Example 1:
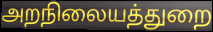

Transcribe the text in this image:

அறநிலையத்துறை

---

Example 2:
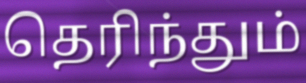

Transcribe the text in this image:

தெரிந்தும்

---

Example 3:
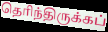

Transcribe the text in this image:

தெரிந்திருக்கப்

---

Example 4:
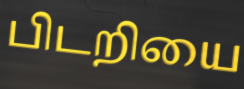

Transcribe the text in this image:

பிடறியை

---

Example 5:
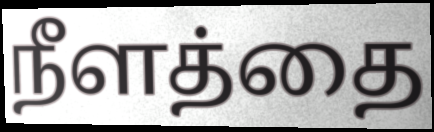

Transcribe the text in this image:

நீளத்தை